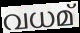
വധമ്